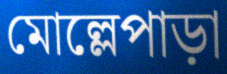
মোল্লেপাড়া